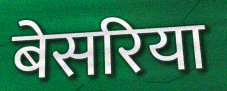
बेसरिया